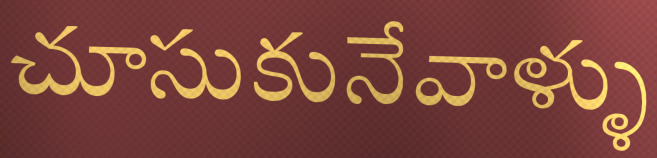
చూసుకునేవాళ్ళు